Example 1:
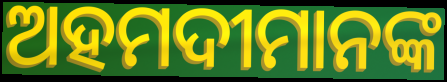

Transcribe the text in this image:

ଅହମଦୀମାନଙ୍କ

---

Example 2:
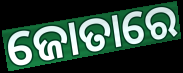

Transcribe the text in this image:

ଜୋତାରେ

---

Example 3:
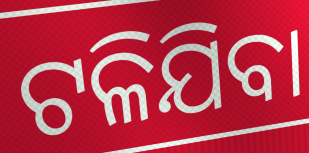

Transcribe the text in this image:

ଟଳିଯିବା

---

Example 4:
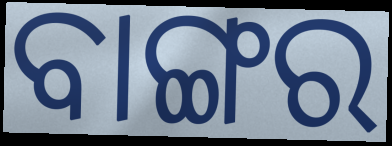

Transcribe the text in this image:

ବାଙ୍ଗର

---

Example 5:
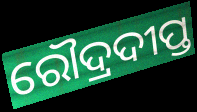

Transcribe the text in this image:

ରୌଦ୍ରଦୀପ୍ତ